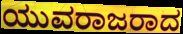
ಯುವರಾಜರಾದ